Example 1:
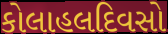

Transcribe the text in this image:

કોલાહલદિવસો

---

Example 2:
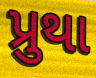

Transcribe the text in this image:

પ્રુથા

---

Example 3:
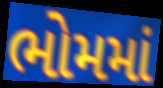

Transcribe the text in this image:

ભોમમાં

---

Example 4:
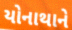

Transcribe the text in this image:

યોનાથાને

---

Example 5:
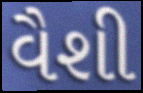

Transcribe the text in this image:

વૈશી